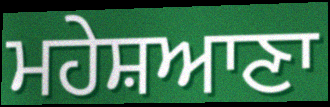
ਮਹੇਸ਼ਆਣਾ